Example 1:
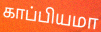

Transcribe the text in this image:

காப்பியமா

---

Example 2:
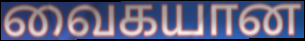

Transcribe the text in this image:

வைகயான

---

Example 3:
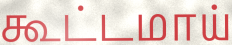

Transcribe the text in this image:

கூட்டமாய்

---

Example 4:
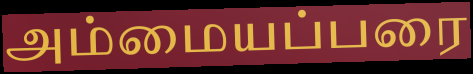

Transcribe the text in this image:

அம்மையப்பரை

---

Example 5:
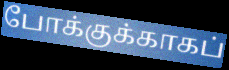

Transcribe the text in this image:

போக்குக்காகப்